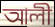
আলী